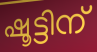
ഷൂട്ടിന്